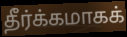
தீர்க்கமாகக்